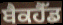
ਬੈਕਹੈੱਡ